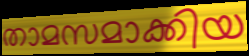
താമസമാക്കിയ